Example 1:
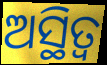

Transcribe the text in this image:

ଅସ୍ଥିତ୍ୱ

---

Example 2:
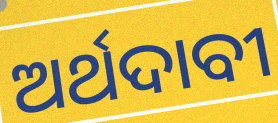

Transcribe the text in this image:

ଅର୍ଥଦାବୀ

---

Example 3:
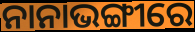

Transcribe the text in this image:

ନାନାଭଙ୍ଗୀରେ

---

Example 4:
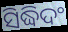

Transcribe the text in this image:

ସିଦ୍ଧିଦଂ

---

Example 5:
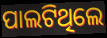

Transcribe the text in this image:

ପାଲଟିଥିଲେ